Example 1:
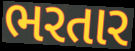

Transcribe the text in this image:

ભરતાર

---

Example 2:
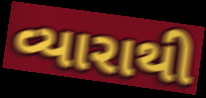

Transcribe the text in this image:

વ્યારાથી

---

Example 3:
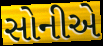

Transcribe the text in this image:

સોનીએ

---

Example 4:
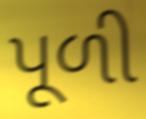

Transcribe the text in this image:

પૂળી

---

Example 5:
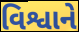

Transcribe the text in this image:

વિશ્વાને